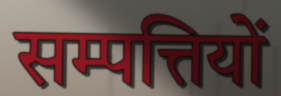
सम्पत्तियों